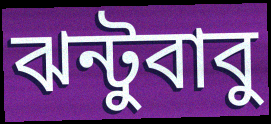
ঝন্টুবাবু